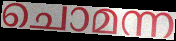
ചൊമന്ന